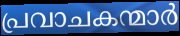
പ്രവാചകന്മാർ